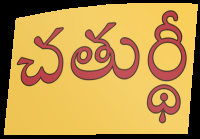
చతుర్థీ